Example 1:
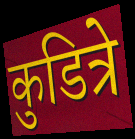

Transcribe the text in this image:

कुडित्रे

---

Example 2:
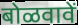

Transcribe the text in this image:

बोळवावें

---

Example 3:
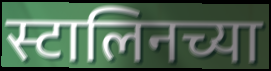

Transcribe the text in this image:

स्टालिनच्या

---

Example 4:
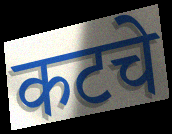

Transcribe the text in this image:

कटचे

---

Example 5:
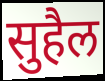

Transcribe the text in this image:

सुहैल